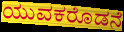
ಯುವಕರೊಡನೆ